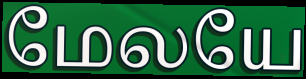
மேலயே